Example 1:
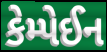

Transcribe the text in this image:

કેમ્પેઈન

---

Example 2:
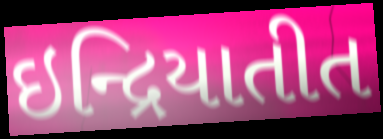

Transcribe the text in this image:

ઇન્દ્રિયાતીત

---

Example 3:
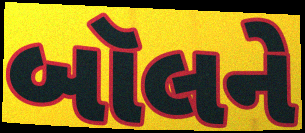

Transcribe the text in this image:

બૉલને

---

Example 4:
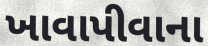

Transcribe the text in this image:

ખાવાપીવાના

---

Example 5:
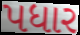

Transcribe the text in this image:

પધાર